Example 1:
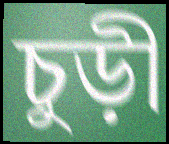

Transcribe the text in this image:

চুড়ী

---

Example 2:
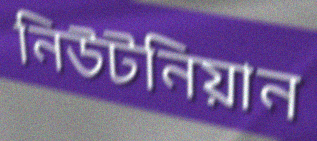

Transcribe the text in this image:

নিউটনিয়ান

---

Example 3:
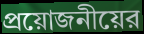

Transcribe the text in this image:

প্রয়োজনীয়ের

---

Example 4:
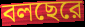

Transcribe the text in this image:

বলছেরে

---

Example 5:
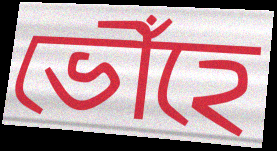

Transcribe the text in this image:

ভৌঁহে